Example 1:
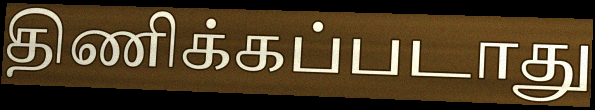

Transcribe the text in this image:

திணிக்கப்படாது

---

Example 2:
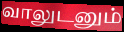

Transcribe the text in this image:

வாலுடனும்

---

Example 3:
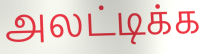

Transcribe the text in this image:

அலட்டிக்க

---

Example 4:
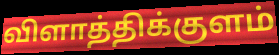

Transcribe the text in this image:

விளாத்திக்குளம்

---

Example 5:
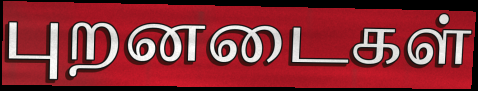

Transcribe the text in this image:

புறனடைகள்